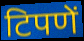
टिपणें